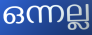
ഒന്നല്ല